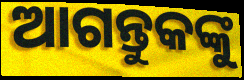
ଆଗନ୍ତୁକଙ୍କୁ